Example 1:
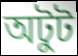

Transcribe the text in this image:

অটুট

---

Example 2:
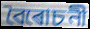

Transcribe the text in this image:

বৈৰোচনী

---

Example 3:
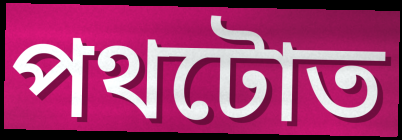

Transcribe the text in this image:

পথটোত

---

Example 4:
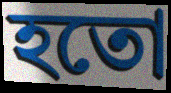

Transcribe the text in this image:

হতো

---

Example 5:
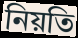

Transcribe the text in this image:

নিয়তি